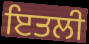
ਇਤਲੀ